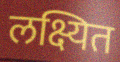
लक्ष्यित